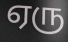
ஏரு